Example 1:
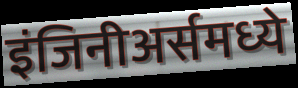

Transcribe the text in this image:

इंजिनीअर्समध्ये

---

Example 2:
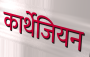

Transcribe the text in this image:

कार्थेजियन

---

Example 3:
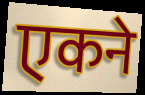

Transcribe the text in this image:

एकने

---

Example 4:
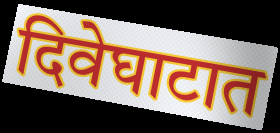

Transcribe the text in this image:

दिवेघाटात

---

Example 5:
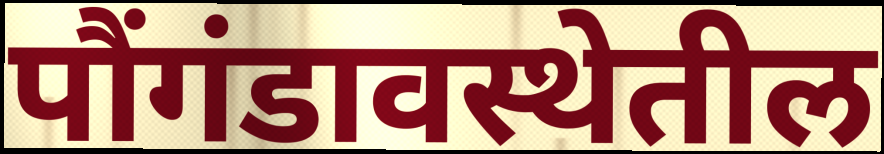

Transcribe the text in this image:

पौंगंडावस्थेतील